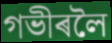
গভীৰলৈ